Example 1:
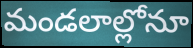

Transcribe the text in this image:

మండలాల్లోనూ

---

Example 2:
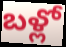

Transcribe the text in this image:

బళ్లో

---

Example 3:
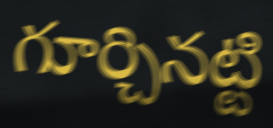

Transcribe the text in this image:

గూర్చినట్టి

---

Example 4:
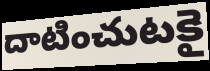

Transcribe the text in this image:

దాటించుటకై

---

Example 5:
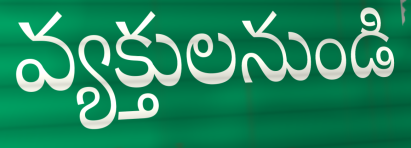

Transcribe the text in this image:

వ్యక్తులనుండి